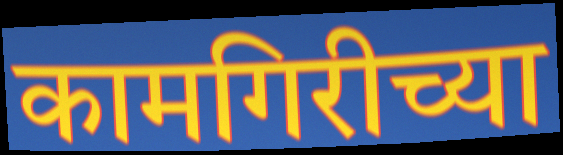
कामगिरीच्या